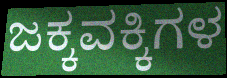
ಜಕ್ಕವಕ್ಕಿಗಳ